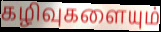
கழிவுகளையும்